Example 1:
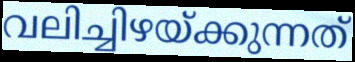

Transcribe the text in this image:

വലിച്ചിഴയ്ക്കുന്നത്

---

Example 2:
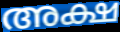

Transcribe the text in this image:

അക്ഷ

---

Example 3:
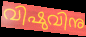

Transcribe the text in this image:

വിഷുവിനു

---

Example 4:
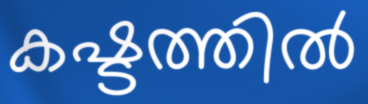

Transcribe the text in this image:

കഷ്ടത്തിൽ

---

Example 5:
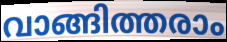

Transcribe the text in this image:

വാങ്ങിത്തരാം